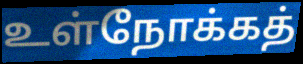
உள்நோக்கத்